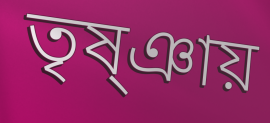
তৃষ্ঞায়